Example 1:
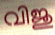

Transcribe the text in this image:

വിജു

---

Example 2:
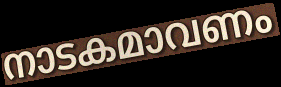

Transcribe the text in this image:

നാടകമാവണം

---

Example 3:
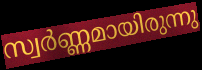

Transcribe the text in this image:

സ്വർണ്ണമായിരുന്നു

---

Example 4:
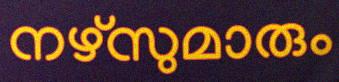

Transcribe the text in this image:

നഴ്സുമാരും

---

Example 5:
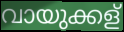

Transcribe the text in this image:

വായുക്കള്